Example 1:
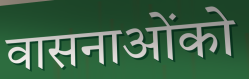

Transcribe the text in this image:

वासनाओंको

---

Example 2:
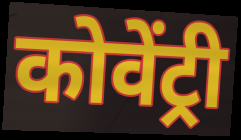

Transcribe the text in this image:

कोवेंट्री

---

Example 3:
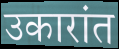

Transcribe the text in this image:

उकारांत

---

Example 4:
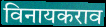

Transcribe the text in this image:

विनायकराव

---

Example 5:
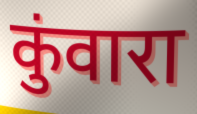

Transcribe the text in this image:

कुंवारा